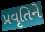
પ્રવૃતિને